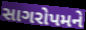
સાગરોપમને